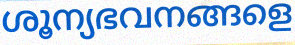
ശൂന്യഭവനങ്ങളെ